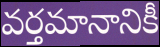
వర్తమానానికీ